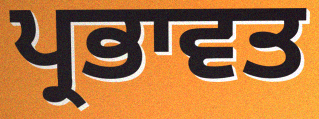
ਪ੍ਰਭਾਵਤ